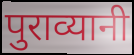
पुराव्यानी